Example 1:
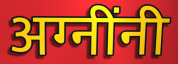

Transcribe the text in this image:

अग्नींनी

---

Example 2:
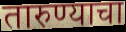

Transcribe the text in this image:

तारुण्याचा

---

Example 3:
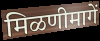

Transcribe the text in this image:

मिळणीमागें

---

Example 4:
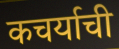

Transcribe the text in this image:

कचर्याची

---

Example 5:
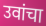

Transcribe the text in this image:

उवांचा